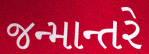
જન્માન્તરે